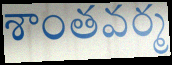
శాంతవర్మ